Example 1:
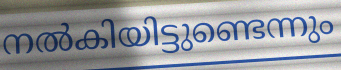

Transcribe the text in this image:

നൽകിയിട്ടുണ്ടെന്നും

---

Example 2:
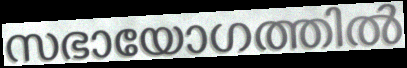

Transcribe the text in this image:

സഭായോഗത്തിൽ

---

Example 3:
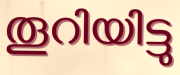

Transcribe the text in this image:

തൂറിയിട്ടു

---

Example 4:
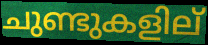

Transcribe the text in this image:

ചുണ്ടുകളില്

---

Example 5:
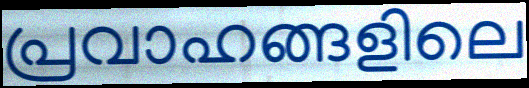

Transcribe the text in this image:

പ്രവാഹങ്ങളിലെ